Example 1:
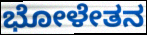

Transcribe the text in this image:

ಭೋಳೇತನ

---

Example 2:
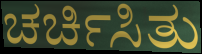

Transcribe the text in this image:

ಚರ್ಚಿಸಿತು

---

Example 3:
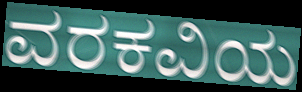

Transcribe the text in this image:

ವರಕವಿಯ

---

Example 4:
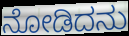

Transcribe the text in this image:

ನೋಡಿದನು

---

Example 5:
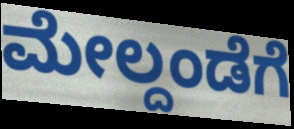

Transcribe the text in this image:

ಮೇಲ್ದಂಡೆಗೆ